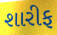
શારીફ